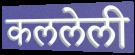
कललेली